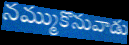
నమ్ముకొనువాడు